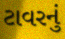
ટાવરનું